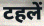
टहलें